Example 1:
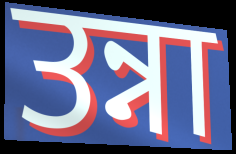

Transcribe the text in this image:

उन्ना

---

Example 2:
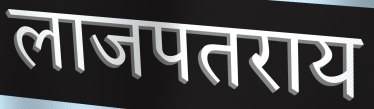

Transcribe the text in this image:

लाजपतराय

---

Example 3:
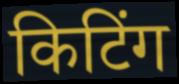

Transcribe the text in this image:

किटिंग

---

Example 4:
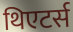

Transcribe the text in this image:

थिएटर्स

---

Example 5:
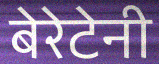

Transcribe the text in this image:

बेरेटेनी